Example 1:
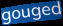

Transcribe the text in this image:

gouged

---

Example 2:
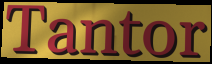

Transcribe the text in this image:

Tantor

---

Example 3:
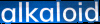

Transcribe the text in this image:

alkaloid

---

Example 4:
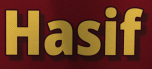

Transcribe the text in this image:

Hasif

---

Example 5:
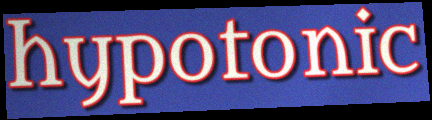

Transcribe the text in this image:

hypotonic